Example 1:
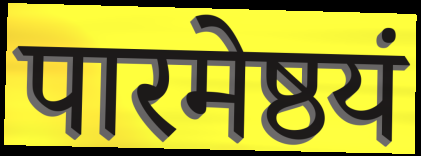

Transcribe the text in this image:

पारमेष्ठयं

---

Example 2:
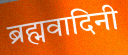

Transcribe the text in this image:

ब्रह्मवादिनी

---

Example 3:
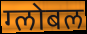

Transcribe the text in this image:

ग्लोबल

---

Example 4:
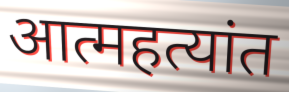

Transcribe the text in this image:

आत्महत्यांत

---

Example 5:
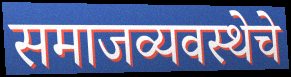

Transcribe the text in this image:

समाजव्यवस्थेचे